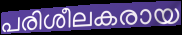
പരിശീലകരായ